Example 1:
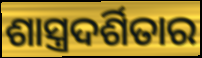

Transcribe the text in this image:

ଶାସ୍ତ୍ରଦର୍ଶିତାର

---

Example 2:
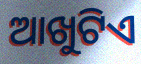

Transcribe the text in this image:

ଆଖୁଟିଏ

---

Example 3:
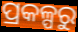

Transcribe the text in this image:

ପ୍ରକଳ୍ପରୁ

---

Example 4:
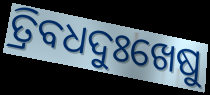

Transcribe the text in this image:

ତ୍ରିବଧଦୁଃଖେଷୁ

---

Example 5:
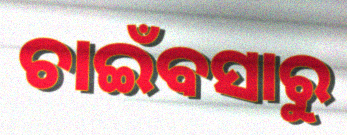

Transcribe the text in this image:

ଚାଇଁବସାରୁ